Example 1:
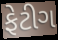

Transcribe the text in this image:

ફેટીગ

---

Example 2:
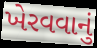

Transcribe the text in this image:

ખેરવવાનું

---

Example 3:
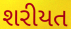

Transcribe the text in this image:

શરીયત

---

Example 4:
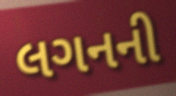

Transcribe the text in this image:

લગનની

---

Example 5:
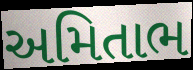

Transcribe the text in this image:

અમિતાભ